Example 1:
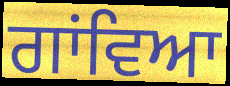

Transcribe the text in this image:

ਗਾਂਵਿਆ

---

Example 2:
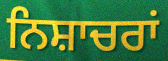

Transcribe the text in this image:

ਨਿਸ਼ਾਚਰਾਂ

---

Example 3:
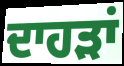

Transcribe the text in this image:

ਦਾਹੜਾਂ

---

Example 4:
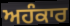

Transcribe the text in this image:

ਅਹੰਕਾਰ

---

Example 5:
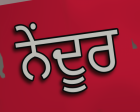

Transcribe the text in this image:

ਨੇਂਦੂਰ